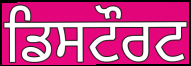
ਡਿਸਟੌਰਟ